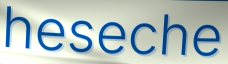
heseche